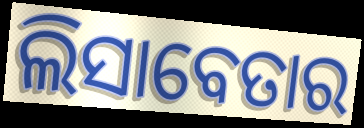
ଲିସାବେତାର